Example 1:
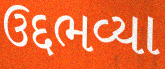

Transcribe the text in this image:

ઉદ્દભવ્યા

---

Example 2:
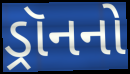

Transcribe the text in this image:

ડ્રૉનનો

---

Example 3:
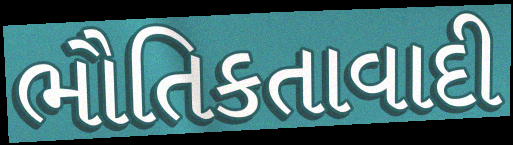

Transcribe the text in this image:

ભૌતિકતાવાદી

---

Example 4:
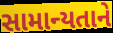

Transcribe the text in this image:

સામાન્યતાને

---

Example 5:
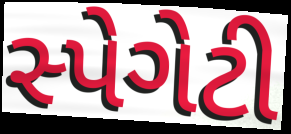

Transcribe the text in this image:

સ્પેગેટી